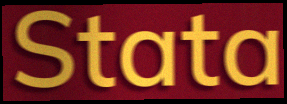
Stata